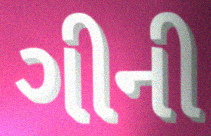
ગીની